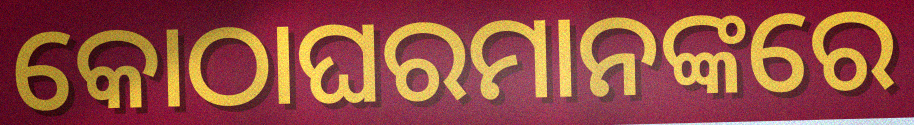
କୋଠାଘରମାନଙ୍କରେ